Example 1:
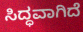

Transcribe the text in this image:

ಸಿದ್ಧವಾಗಿದೆ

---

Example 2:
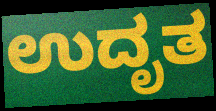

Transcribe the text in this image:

ಉದೃತ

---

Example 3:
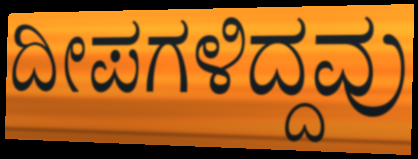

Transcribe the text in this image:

ದೀಪಗಳಿದ್ದವು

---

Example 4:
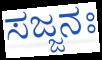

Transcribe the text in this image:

ಸಜ್ಜನಃ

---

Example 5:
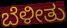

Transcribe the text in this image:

ಬೆಳೀತು